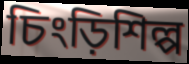
চিংড়িশিল্প